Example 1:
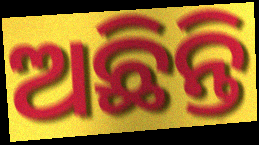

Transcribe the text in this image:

ଅଛିନ୍ତି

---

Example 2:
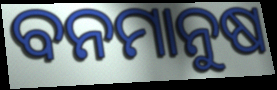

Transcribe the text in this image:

ବନମାନୁଷ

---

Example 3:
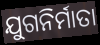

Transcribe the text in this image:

ଯୁଗନିର୍ମାତା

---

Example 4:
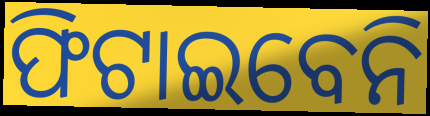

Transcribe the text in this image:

ଫିଟାଇବେନି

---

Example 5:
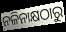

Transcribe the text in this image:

ନଳିନାକ୍ଷଠାରୁ